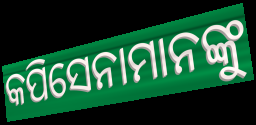
କପିସେନାମାନଙ୍କୁ